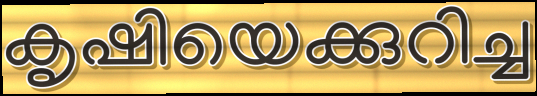
കൃഷിയെക്കുറിച്ച